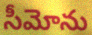
సీమోను